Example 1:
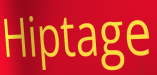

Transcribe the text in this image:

Hiptage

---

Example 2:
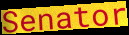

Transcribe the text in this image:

Senator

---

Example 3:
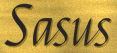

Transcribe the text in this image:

Sasus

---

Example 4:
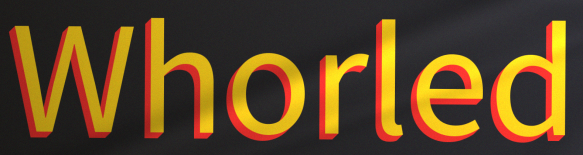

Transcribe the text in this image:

Whorled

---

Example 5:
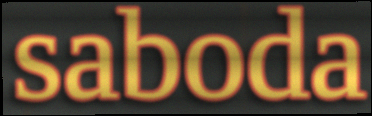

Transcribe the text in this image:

saboda